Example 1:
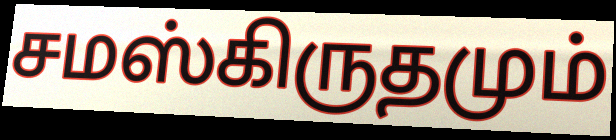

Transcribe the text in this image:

சமஸ்கிருதமும்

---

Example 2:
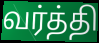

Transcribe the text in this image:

வர்த்தி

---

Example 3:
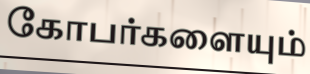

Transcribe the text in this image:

கோபர்களையும்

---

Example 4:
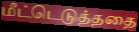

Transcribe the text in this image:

மீட்டெடுத்ததை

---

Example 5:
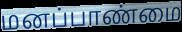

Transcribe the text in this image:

மனப்பாண்மை